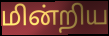
மின்றிய